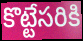
కొట్టేసరికి